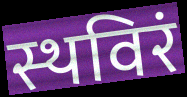
स्थविरं